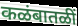
कळंबातळीं